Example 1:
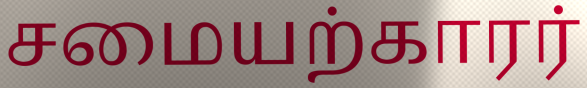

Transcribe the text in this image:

சமையற்காரர்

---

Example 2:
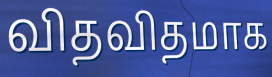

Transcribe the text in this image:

விதவிதமாக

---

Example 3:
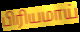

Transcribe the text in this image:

பிரியமாய்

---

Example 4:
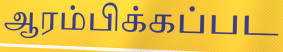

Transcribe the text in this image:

ஆரம்பிக்கப்பட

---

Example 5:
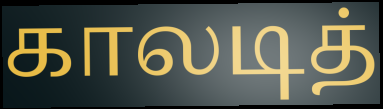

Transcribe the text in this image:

காலடித்